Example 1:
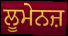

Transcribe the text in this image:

ਲੂਮੇਨਜ਼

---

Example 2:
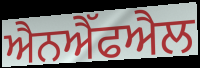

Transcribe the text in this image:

ਐਨਐੱਫਐਲ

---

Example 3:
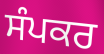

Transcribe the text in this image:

ਸੰਪਕਰ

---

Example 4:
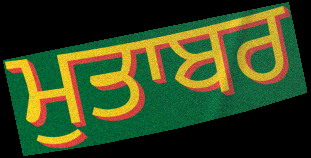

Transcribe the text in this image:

ਮੁਤਾਬਰ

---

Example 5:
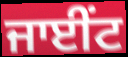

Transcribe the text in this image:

ਜਾਈਂਟ